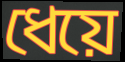
ধেয়ে